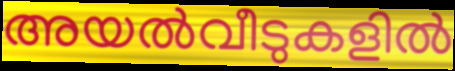
അയൽവീടുകളിൽ